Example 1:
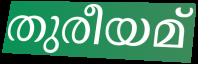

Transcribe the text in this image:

തുരീയമ്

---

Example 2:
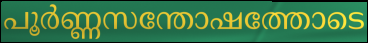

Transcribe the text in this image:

പൂർണ്ണസന്തോഷത്തോടെ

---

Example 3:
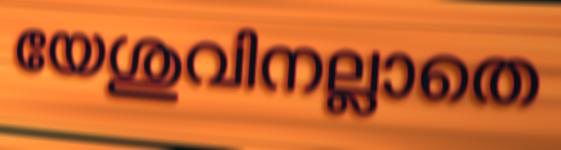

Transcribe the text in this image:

യേശുവിനല്ലാതെ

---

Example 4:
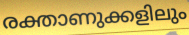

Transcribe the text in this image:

രക്താണുക്കളിലും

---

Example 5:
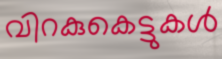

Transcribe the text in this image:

വിറകുകെട്ടുകൾ